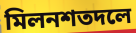
মিলনশতদলে